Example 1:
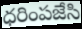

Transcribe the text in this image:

ధరింపజేసి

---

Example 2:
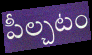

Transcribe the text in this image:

పీల్చటం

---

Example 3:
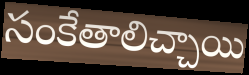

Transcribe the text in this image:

సంకేతాలిచ్చాయి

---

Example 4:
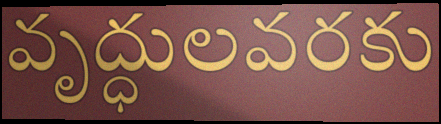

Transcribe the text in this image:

వృద్ధులవరకు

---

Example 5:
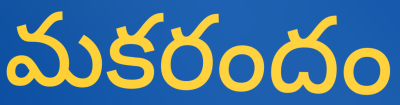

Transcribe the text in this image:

మకరందం